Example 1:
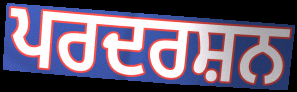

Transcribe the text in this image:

ਪਰਦਰਸ਼ਨ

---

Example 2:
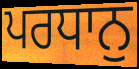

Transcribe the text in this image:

ਪਰਧਾਨੁ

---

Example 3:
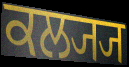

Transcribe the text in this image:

ਕਲ੍ਯ੍ਯ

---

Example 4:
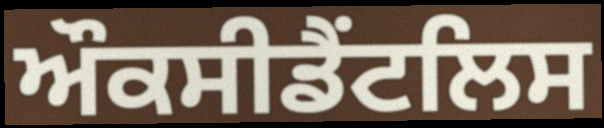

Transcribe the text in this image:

ਔਕਸੀਡੈਂਟਲਿਸ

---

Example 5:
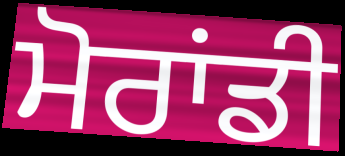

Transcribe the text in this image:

ਮੋਰਾਂਡੀ